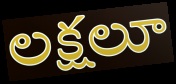
లక్షలూ